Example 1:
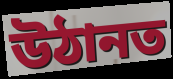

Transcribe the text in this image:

উঠানত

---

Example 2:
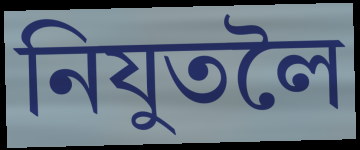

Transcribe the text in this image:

নিযুতলৈ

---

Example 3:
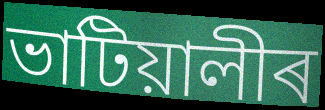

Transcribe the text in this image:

ভাটিয়ালীৰ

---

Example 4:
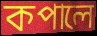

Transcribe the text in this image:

কপালে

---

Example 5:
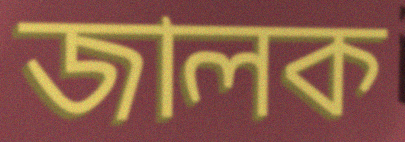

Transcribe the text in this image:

জালক